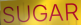
SUGAR